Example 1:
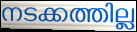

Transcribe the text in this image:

നടക്കത്തില്ല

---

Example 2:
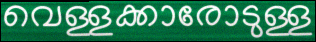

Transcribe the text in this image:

വെള്ളക്കാരോടുള്ള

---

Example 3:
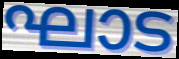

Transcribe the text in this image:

ഘാട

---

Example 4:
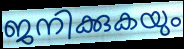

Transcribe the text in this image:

ജനിക്കുകയും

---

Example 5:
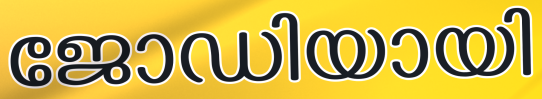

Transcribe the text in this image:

ജോഡിയായി